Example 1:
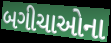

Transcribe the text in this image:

બગીચાઓના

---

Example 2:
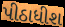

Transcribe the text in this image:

પીઠાધીશ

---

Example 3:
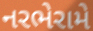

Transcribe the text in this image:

નરભેરામે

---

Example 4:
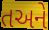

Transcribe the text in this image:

તઅને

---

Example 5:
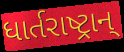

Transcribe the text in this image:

ધાર્તરાષ્ટ્રાન્